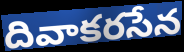
దివాకరసేన